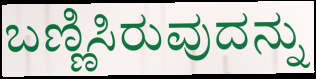
ಬಣ್ಣಿಸಿರುವುದನ್ನು